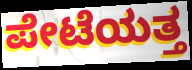
ಪೇಟೆಯತ್ತ